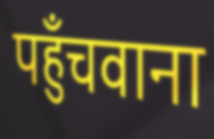
पहुँचवाना